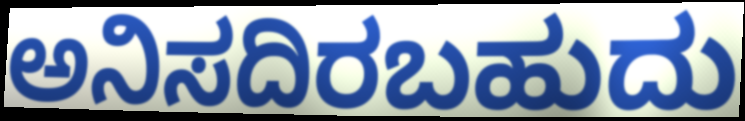
ಅನಿಸದಿರಬಹುದು